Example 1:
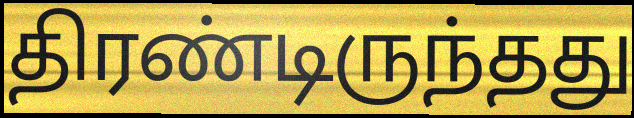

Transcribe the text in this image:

திரண்டிருந்தது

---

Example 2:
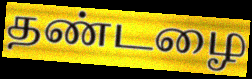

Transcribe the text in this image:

தண்டழை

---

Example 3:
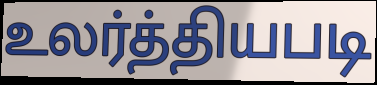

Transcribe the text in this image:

உலர்த்தியபடி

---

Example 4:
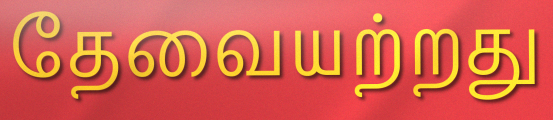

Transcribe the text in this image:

தேவையற்றது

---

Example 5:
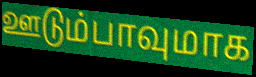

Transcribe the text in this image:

ஊடும்பாவுமாக